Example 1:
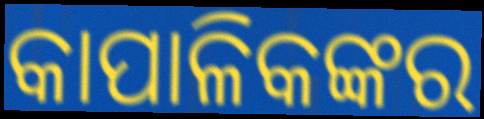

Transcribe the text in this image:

କାପାଳିକଙ୍କର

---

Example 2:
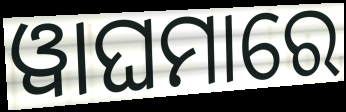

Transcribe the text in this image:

ୱାଘମାରେ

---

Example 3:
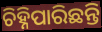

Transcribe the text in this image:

ଚିହ୍ନିପାରିଛନ୍ତି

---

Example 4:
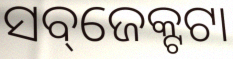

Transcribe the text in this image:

ସବ୍‌ଜେକ୍ଟଟା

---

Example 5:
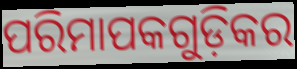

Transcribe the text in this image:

ପରିମାପକଗୁଡ଼ିକର